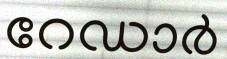
റേഡാർ